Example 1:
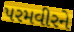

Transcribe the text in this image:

પરમવીરને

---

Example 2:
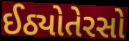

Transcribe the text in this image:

ઈઠ્યોતેરસો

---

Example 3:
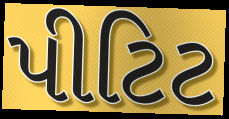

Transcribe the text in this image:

પીટિટ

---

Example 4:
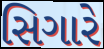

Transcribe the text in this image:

સિગારે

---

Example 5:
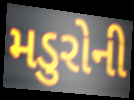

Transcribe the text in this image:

મડુરોની